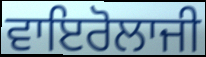
ਵਾਇਰੋਲਾਜੀ